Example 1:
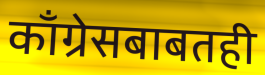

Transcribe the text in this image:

काँग्रेसबाबतही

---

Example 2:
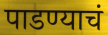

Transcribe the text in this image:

पाडण्याचं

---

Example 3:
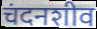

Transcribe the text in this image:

चंदनशीव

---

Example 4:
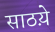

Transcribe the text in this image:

साठय़े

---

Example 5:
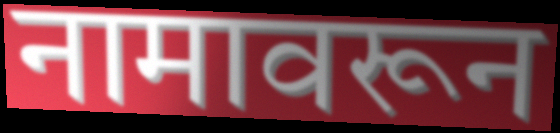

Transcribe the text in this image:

नामावरून